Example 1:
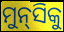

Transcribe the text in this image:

ମୁନ୍‌ସିକୁ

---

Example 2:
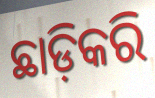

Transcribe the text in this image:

ଛାଡ଼ିକରି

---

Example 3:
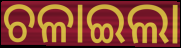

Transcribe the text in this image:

ଚଳାଇଲା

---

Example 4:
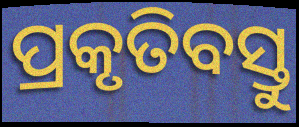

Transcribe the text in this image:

ପ୍ରକୃତିବସ୍ତୁ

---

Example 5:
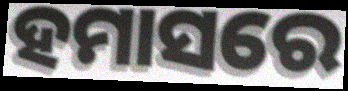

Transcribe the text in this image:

ହମାସରେ